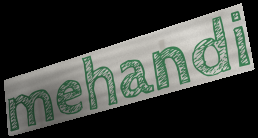
mehandi